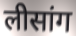
लीसांग